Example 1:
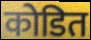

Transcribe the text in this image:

कोडित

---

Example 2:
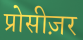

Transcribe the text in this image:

प्रोसीज़र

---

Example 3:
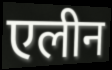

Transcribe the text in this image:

एलीन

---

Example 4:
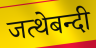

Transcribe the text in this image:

जत्थेबन्दी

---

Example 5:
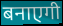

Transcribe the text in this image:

बनाएगी